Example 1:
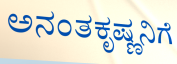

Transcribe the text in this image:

ಅನಂತಕೃಷ್ಣನಿಗೆ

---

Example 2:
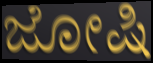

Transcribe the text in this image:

ಜೋಷಿ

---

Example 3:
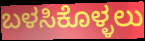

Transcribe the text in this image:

ಬಳಸಿಕೊಳ್ಳಲು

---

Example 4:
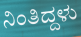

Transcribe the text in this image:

ನಿಂತಿದ್ದಳು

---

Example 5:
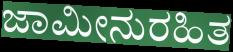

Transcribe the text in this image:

ಜಾಮೀನುರಹಿತ